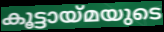
കൂട്ടായ്മയുടെ